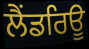
ਲੈਂਡਰਿਊ